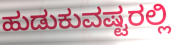
ಹುಡುಕುವಷ್ಟರಲ್ಲಿ